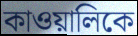
কাওয়ালিকে